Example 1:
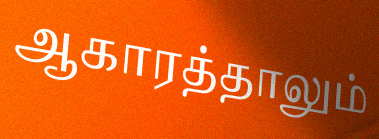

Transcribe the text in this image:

ஆகாரத்தாலும்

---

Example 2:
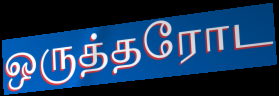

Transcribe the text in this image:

ஒருத்தரோட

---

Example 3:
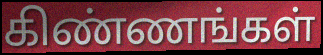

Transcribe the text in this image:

கிண்ணங்கள்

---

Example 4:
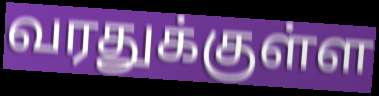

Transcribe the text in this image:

வரதுக்குள்ள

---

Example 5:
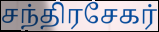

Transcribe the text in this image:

சந்திரசேகர்